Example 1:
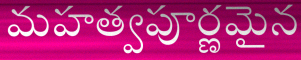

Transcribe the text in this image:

మహత్వపూర్ణమైన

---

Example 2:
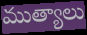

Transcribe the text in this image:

ముత్యాలు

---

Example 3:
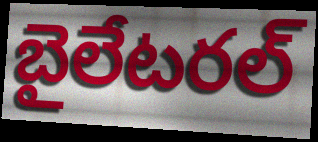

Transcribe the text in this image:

బైలేటరల్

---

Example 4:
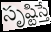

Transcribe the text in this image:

సృష్టిస్తే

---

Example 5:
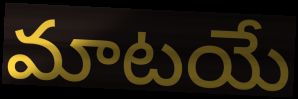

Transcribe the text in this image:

మాటయే